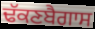
ਢੱਕਣਬੈਗਾਸ